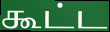
கூட்ட